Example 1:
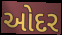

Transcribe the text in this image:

ઓદર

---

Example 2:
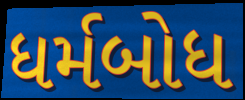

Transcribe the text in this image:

ધર્મબોધ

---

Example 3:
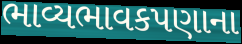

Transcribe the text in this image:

ભાવ્યભાવકપણાના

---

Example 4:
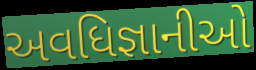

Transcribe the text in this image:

અવધિજ્ઞાનીઓ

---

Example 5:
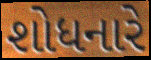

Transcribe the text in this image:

શોધનારે